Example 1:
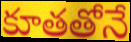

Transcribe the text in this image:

కూతతోనే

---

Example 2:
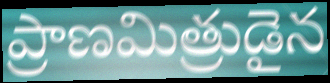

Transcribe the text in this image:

ప్రాణమిత్రుడైన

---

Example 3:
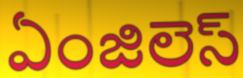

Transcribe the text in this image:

ఏంజిలెస్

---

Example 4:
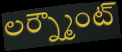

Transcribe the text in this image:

లర్న్మౌంట్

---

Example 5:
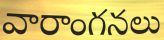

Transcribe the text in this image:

వారాంగనలు